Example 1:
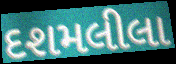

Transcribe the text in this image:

દશમલીલા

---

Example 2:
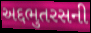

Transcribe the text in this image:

અદ્દભુતરસની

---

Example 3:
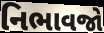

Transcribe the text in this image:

નિભાવજો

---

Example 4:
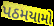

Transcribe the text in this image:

પઠમયામો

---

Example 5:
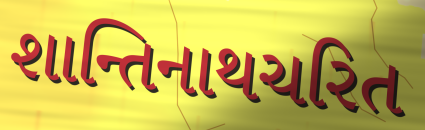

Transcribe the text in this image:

શાન્તિનાથચરિત